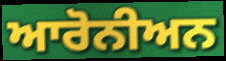
ਆਰੋਨੀਅਨ